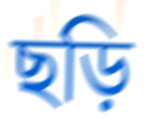
ছড়ি